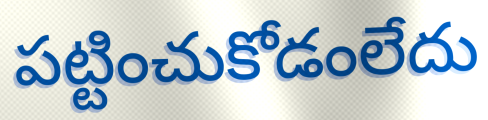
పట్టించుకోడంలేదు